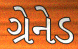
ગ્રેનેડ